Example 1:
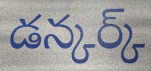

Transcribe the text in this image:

డన్కర్క్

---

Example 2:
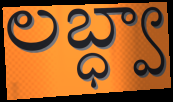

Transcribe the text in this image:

లబ్ధ్వా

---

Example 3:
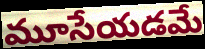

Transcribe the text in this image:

మూసేయడమే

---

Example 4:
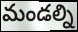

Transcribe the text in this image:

మండల్ని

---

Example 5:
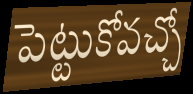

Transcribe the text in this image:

పెట్టుకోవచ్చో